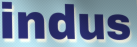
indus